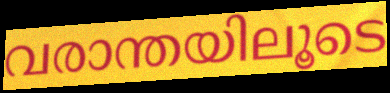
വരാന്തയിലൂടെ